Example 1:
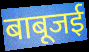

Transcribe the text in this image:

बाबूजई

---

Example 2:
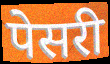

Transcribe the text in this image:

पेसरी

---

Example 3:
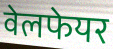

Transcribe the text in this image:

वेलफेयर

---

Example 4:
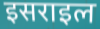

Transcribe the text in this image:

इसराइल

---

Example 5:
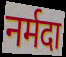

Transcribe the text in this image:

नर्मदा